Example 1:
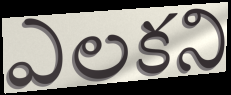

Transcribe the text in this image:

ఎలకని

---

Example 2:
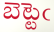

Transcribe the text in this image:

బెట్టెఁ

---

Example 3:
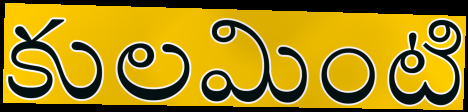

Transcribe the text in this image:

కులమింటి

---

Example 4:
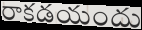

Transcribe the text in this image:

రాకడయందు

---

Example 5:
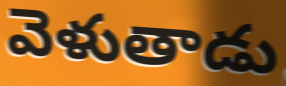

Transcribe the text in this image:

వెళుతాడు